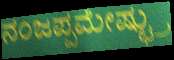
ನಂಜಪ್ಪಮೇಷ್ಟ್ರು